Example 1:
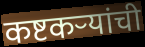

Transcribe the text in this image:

कष्टकऱ्यांची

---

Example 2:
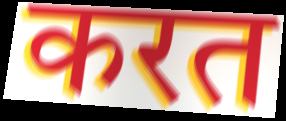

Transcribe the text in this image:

करत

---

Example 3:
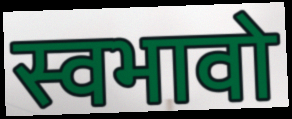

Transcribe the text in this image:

स्वभावो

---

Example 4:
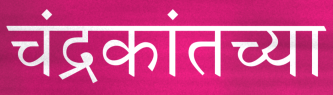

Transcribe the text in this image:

चंद्रकांतच्या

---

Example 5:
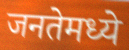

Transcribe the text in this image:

जनतेमध्ये